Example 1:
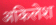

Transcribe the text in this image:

अकिलेश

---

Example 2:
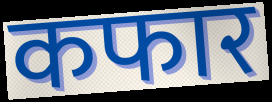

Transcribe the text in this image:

कफार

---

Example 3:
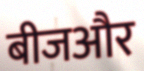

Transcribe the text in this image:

बीजऔर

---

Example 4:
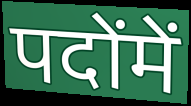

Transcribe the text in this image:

पदोंमें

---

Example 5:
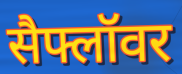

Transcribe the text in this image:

सैफ्लॉवर